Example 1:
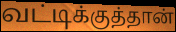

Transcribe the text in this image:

வட்டிக்குத்தான்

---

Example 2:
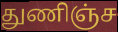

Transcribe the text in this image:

துணிஞ்ச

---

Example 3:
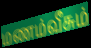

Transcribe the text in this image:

மணம்வீசும்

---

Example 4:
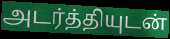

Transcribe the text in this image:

அடர்த்தியுடன்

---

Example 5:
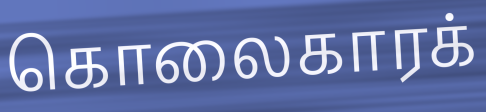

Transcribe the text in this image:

கொலைகாரக்